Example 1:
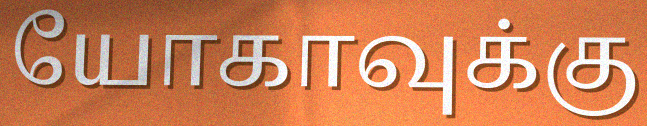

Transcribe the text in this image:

யோகாவுக்கு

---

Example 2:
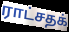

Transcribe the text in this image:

ராட்சதக்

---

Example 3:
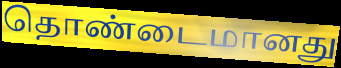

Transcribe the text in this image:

தொண்டைமானது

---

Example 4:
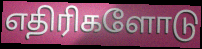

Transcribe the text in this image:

எதிரிகளோடு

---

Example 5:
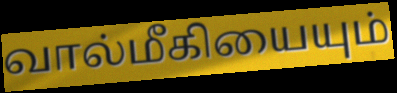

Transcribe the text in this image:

வால்மீகியையும்